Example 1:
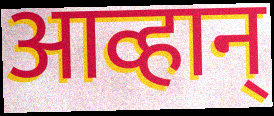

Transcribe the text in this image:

आव्हान्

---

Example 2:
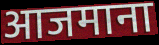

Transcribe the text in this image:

आजमाना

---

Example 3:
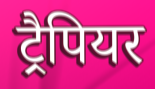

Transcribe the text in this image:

ट्रैपियर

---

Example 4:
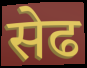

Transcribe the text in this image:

सेढ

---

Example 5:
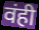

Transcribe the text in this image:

वंही